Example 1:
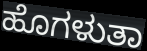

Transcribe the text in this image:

ಹೊಗಳುತಾ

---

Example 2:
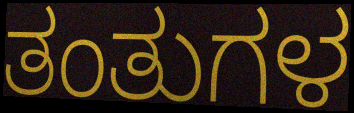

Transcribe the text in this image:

ತಂತುಗಳ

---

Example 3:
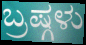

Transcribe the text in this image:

ಬ್ರಷ್ಗಳು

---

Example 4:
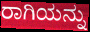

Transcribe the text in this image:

ರಾಗಿಯನ್ನು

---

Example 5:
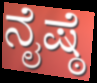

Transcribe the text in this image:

ನೈಷ್ಠೆ